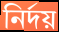
নির্দয়